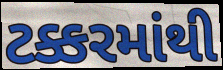
ટક્કરમાંથી